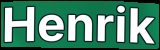
Henrik